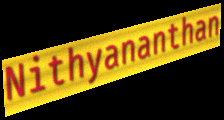
Nithyananthan